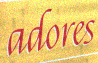
adores